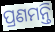
ପ୍ରଣମନ୍ତି